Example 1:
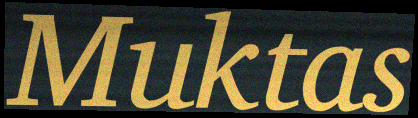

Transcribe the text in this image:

Muktas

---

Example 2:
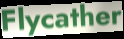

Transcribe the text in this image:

Flycather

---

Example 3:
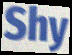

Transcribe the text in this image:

Shy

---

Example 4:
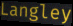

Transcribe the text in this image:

Langley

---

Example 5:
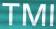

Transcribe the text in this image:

TMI